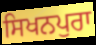
ਸਿਖਨਪੁਰਾ